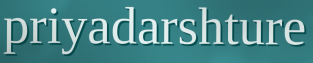
priyadarshture